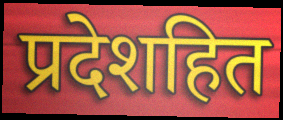
प्रदेशहित